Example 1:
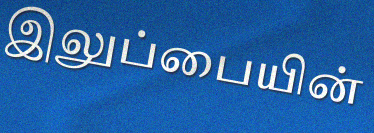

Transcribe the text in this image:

இலுப்பையின்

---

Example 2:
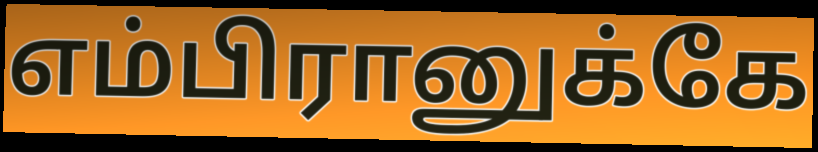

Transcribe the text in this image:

எம்பிரானுக்கே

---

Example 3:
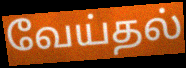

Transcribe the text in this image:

வேய்தல்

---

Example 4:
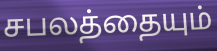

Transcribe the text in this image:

சபலத்தையும்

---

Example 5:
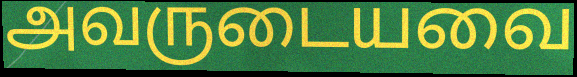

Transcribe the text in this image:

அவருடையவை